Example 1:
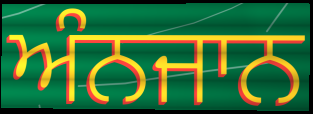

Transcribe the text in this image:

ਅੰਨਜਾਨ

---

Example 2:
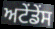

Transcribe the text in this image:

ਅਟੇਂਡੇਂਸ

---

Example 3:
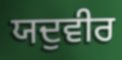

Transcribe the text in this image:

ਯਦੁਵੀਰ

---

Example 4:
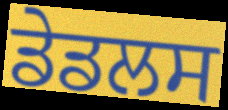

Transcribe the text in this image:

ਡੇਡਲਸ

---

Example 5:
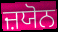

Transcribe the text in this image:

ਜ਼ਯੋਨ